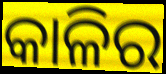
କାଳିର